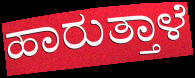
ಹಾರುತ್ತಾಳೆ